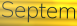
Septem